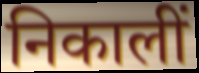
निकालीं